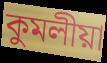
কুমলীয়া